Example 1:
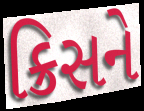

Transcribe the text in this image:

ક્રિસને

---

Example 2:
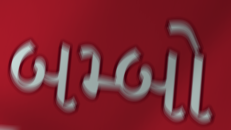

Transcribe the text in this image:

બમ્બો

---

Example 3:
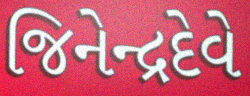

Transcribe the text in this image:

જિનેન્દ્રદેવે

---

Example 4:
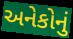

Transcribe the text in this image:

અનેકોનું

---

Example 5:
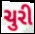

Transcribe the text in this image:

ચુરી